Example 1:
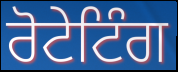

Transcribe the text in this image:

ਰੋਟੇਟਿੰਗ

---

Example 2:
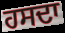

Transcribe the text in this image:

ਹਸਦਾ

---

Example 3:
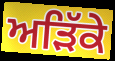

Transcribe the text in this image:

ਅੜਿੱਕੇ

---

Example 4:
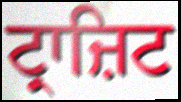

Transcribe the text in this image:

ਟ੍ਰਾਜ਼ਿਟ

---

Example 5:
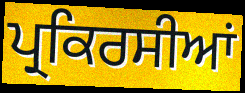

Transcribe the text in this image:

ਪ੍ਰਕਿਰਸੀਆਂ